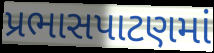
પ્રભાસપાટણમાં